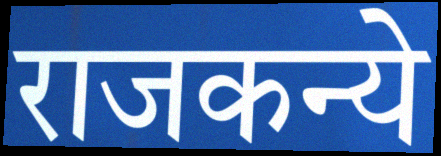
राजकन्ये